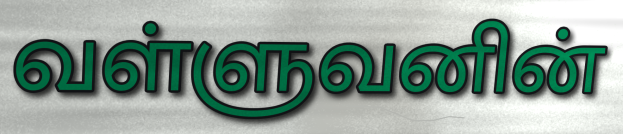
வள்ளுவனின்